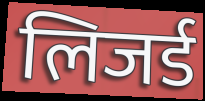
लिजर्ड